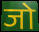
जो